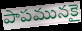
పాపమునకై